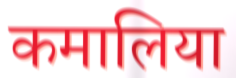
कमालिया